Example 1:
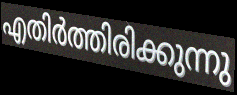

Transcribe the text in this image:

എതിർത്തിരിക്കുന്നു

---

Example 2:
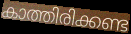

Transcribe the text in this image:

കാത്തിരിക്കണ്ട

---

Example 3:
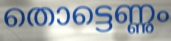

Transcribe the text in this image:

തൊട്ടെണ്ണും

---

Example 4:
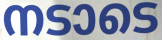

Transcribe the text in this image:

നടാടെ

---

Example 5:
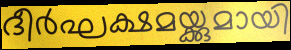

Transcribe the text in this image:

ദീർഘക്ഷമയ്ക്കുമായി